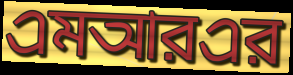
এমআরএর